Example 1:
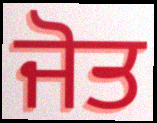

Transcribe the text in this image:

ਜੋਤ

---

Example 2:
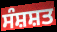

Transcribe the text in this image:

ਸੰਸ਼ਸ਼ਤ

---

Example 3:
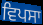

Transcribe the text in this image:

ਵਿਪਸਾ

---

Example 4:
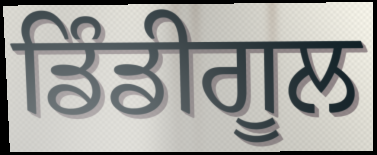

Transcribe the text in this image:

ਡਿੰਡੀਗੂਲ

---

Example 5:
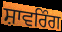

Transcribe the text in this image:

ਸ਼ਾਵਰਿੰਗ